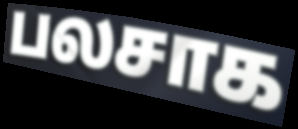
பலசாக